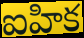
ఐహిక